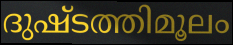
ദുഷ്ടത്തിമൂലം